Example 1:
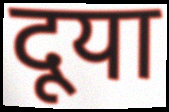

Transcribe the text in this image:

दूया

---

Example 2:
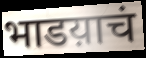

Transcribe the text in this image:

भाडय़ाचं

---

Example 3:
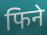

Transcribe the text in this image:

फिने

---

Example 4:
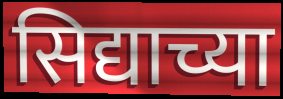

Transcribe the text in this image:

सिद्याच्या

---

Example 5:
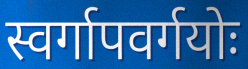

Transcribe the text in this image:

स्वर्गापवर्गयोः